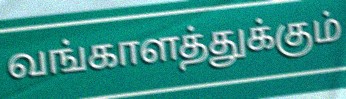
வங்காளத்துக்கும்